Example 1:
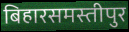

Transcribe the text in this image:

बिहारसमस्तीपुर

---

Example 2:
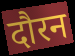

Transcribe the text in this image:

दौरन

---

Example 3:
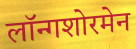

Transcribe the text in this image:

लॉन्गशोरमेन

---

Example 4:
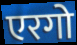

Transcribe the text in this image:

एरगो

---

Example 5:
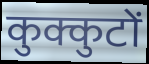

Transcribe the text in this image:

कुक्कुटों